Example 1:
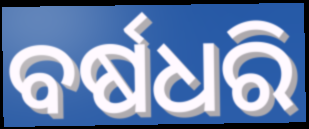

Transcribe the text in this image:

ବର୍ଷଧରି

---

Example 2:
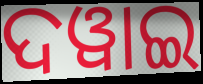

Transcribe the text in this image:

ଦୱାଇ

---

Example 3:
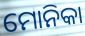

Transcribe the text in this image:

ମୋନିକା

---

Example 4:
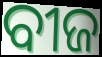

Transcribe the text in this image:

ବୀଜ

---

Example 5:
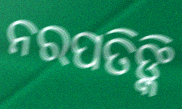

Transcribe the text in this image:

ନରପତିଙ୍କି